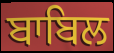
ਬਾਬਿਲ